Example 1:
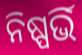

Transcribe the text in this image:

ନିଷ୍ପର୍ଭି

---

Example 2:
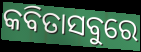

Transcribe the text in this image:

କବିତାସବୁରେ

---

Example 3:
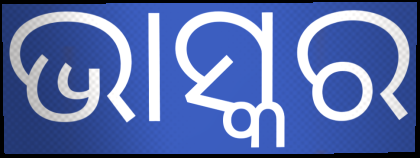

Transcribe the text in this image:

ଭାସ୍କର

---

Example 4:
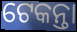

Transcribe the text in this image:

ଟେକନ୍ତା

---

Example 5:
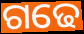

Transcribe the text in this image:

ଗଢେ